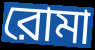
রোমা